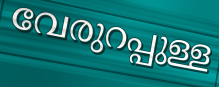
വേരുറപ്പുള്ള